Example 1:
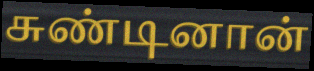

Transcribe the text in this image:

சுண்டினான்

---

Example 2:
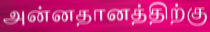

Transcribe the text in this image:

அன்னதானத்திற்கு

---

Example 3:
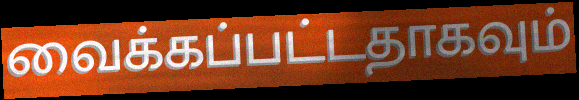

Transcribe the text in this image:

வைக்கப்பட்டதாகவும்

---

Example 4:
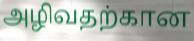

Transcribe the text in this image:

அழிவதற்கான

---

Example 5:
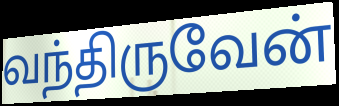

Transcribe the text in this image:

வந்திருவேன்